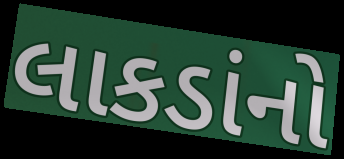
લાકડાંનો